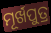
ମୂର୍ଖପୁତ୍ର